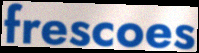
frescoes